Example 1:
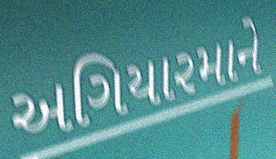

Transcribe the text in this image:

અગિયારમાને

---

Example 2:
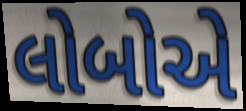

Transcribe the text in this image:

લોબોએ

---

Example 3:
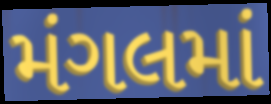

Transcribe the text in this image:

મંગલમાં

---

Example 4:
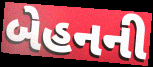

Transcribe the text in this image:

બેહનની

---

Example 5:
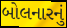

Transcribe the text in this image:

બોલનારનું